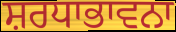
ਸ਼ਰਧਾਭਾਵਨਾ